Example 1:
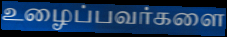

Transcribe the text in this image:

உழைப்பவர்களை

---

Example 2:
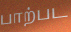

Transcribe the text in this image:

பாற்பட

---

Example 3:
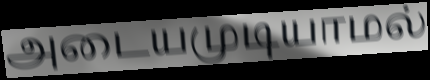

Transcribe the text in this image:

அடையமுடியாமல்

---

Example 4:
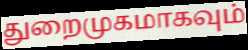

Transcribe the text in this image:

துறைமுகமாகவும்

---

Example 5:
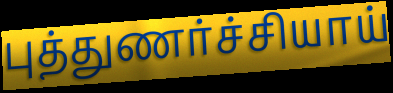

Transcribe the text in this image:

புத்துணர்ச்சியாய்